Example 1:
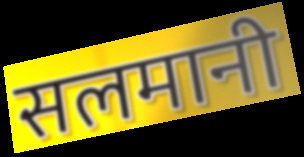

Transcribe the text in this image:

सलमानी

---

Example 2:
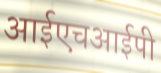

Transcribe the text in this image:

आईएचआईपी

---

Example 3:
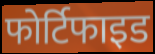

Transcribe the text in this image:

फोर्टिफाइड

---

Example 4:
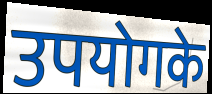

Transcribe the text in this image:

उपयोगके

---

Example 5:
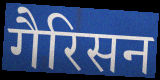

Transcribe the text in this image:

गैरिसन